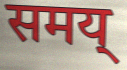
समय्